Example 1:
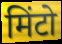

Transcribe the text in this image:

मिंटो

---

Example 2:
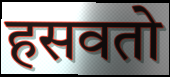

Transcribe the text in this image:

हसवतो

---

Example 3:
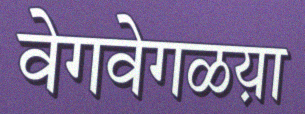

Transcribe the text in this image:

वेगवेगळय़ा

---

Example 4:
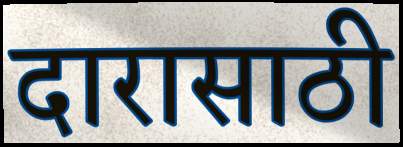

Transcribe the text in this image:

दारासाठी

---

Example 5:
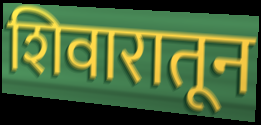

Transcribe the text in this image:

शिवारातून